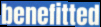
benefitted